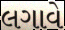
લગાવે